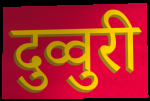
दुव्वुरी